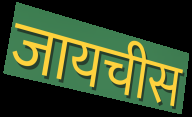
जायचीस